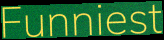
Funniest